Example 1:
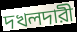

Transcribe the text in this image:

দখলদারী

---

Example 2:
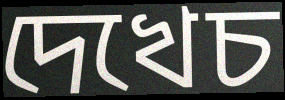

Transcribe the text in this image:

দেখেচ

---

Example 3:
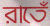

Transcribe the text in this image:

রাতেঁ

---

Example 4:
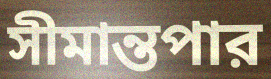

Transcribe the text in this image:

সীমান্তপার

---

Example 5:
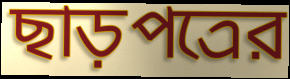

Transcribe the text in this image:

ছাড়পত্রের